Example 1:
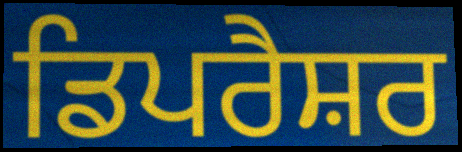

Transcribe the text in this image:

ਡਿਪਰੈਸ਼ਰ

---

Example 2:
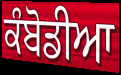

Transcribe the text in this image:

ਕੰਬੋਡੀਆ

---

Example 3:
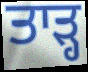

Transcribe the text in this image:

ਤਾੜ੍ਹ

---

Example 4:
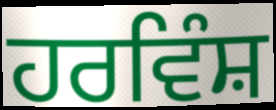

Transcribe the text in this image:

ਹਰਵਿੰਸ਼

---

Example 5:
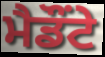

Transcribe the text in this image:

ਮੈਡੌਂਟੇ